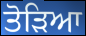
ਤੋਡ਼ਿਆ